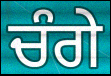
ਚੰਗੇ